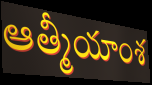
ఆత్మీయాంశ